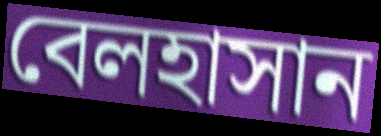
বেলহাসান